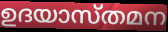
ഉദയാസ്തമന